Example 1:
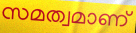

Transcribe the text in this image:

സമത്വമാണ്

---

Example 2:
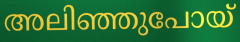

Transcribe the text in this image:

അലിഞ്ഞുപോയ്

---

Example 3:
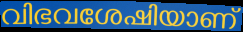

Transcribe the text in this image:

വിഭവശേഷിയാണ്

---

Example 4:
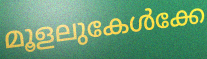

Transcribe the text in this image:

മൂളലുകേൾക്കേ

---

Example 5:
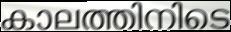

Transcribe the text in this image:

കാലത്തിനിടെ